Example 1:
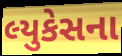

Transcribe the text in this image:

લ્યુકેસના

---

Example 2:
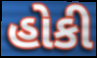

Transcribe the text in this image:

હોકી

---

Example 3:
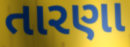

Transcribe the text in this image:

તારણા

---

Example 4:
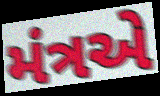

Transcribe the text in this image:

મંત્રએ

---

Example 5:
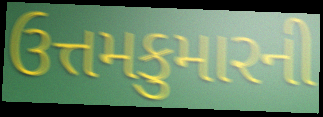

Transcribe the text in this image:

ઉત્તમકુમારની